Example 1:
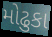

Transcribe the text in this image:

મોઢુકા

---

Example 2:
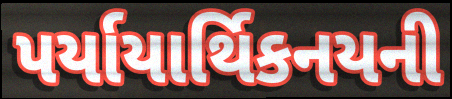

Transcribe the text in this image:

પર્યાયાર્થિકનયની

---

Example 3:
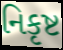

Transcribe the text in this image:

નિકૃષ્ટ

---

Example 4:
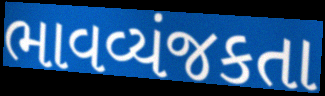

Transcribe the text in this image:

ભાવવ્યંજકતા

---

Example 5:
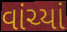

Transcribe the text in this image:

વાંચ્યાં